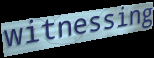
witnessing